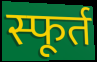
स्‍फूर्त